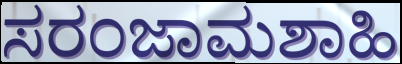
ಸರಂಜಾಮಶಾಹಿ